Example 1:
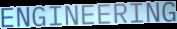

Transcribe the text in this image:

ENGINEERING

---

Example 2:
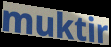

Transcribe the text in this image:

muktir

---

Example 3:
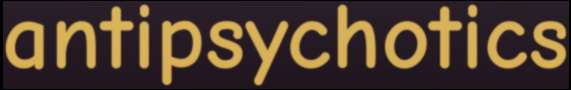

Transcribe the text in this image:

antipsychotics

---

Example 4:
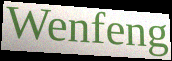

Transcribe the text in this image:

Wenfeng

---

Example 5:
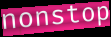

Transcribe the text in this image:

nonstop